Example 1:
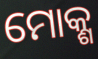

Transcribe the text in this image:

ମୋକ୍ଶ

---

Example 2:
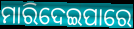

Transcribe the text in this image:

ମାରିଦେଇପାରେ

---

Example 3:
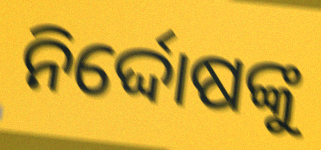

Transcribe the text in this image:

ନିର୍ଦ୍ଦୋଷଙ୍କୁ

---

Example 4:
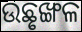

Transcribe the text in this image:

ଉଛୃଙ୍ଖଳ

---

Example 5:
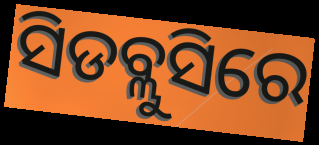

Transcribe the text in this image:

ସିଡବ୍ଲୁସିରେ